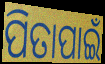
ପିତାପାଇଁ